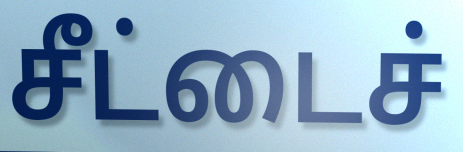
சீட்டைச்